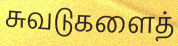
சுவடுகளைத்